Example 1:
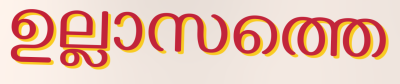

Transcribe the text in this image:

ഉല്ലാസത്തെ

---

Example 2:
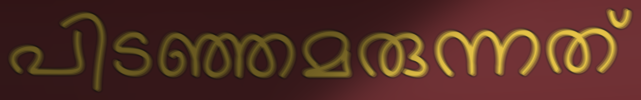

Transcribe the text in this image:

പിടഞ്ഞമരുന്നത്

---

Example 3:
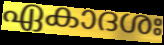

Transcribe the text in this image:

ഏകാദശഃ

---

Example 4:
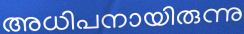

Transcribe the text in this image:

അധിപനായിരുന്നു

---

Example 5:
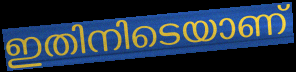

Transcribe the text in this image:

ഇതിനിടെയാണ്